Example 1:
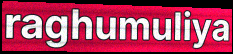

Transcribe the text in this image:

raghumuliya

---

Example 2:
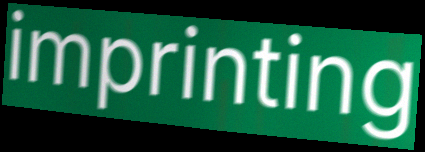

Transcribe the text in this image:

imprinting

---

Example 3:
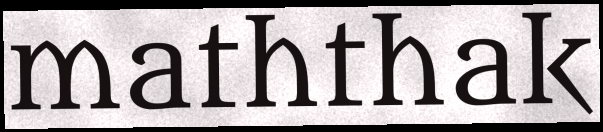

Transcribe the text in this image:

maththak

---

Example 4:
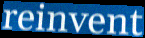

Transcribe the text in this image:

reinvent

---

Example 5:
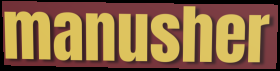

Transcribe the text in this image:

manusher